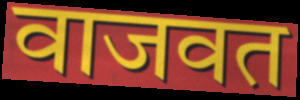
वाजवत